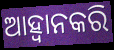
ଆହ୍ୱାନକରି